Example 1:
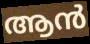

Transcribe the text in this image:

ആൻ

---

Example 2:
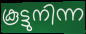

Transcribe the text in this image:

കൂട്ടുനിന്ന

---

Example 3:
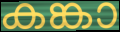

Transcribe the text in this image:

കങ്കാ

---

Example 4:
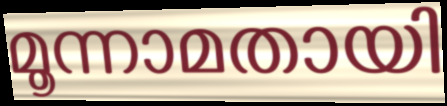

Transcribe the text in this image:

മൂന്നാമതായി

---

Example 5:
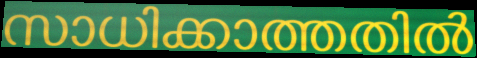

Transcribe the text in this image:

സാധിക്കാത്തതിൽ